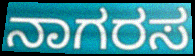
ನಾಗರಸ